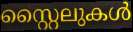
സ്റ്റൈലുകൾ